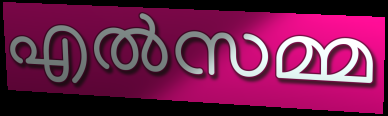
എൽസമ്മ